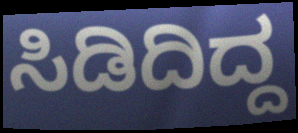
ಸಿಡಿದಿದ್ದ